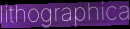
lithographica